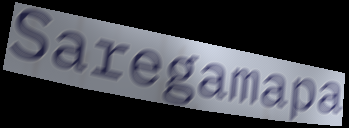
Saregamapa